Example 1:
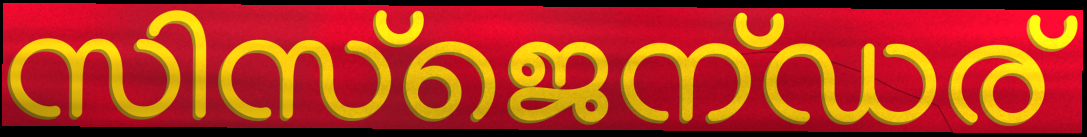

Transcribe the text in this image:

സിസ്ജെന്ഡര്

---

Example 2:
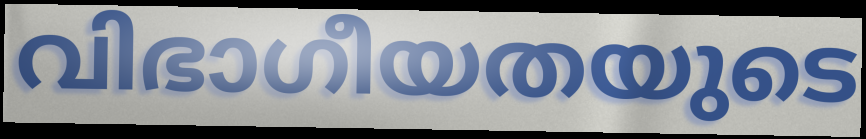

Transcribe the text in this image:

വിഭാഗീയതയുടെ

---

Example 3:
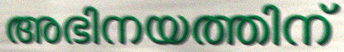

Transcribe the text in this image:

അഭിനയത്തിന്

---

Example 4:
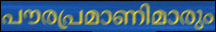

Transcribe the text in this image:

പൗരപ്രമാണിമാരും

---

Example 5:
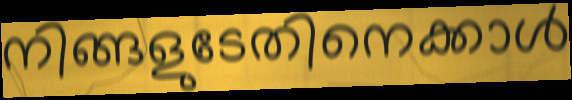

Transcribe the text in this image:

നിങ്ങളുടേതിനെക്കാൾ